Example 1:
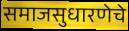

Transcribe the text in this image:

समाजसुधारणेचे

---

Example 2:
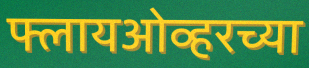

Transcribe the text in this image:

फ्लायओव्हरच्या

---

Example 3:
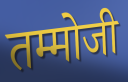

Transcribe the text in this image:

तम्मोजी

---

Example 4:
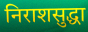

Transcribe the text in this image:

निराशसुद्धा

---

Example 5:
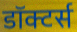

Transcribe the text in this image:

डॉक्टर्स